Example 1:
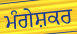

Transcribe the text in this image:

ਮੰਗੇਸ਼ਕਰ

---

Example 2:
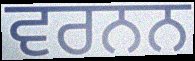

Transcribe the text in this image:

ਵਰਨਨ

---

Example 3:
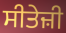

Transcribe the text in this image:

ਸੀਤੇਜ਼ੀ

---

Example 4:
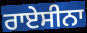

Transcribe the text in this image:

ਰਾਏਸੀਨਾ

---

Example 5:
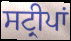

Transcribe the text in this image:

ਸਟ੍ਰੀਪਾਂ